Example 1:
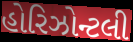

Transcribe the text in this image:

હોરિઝોન્ટલી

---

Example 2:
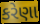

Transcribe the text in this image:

કરેણા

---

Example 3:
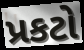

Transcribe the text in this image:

પ્રકટો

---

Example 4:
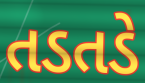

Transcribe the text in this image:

તડતડે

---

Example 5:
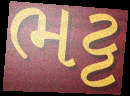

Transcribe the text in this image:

ભટ્ટ